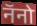
नॅनो